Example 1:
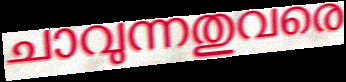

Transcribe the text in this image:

ചാവുന്നതുവരെ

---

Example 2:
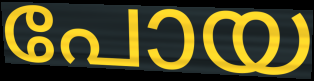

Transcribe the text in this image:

പോയ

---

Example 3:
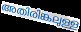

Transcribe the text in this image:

അതിരിങ്കലുള്ള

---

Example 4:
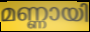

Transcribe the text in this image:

മണ്ണായി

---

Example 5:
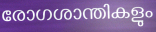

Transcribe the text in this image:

രോഗശാന്തികളും